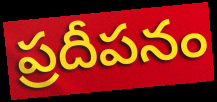
ప్రదీపనం